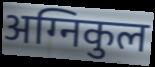
अग्निकुल